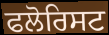
ਫਲੋਰਿਸਟ